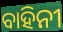
ବାହିନୀ